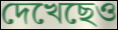
দেখেছেও